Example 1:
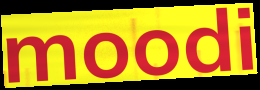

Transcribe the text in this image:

moodi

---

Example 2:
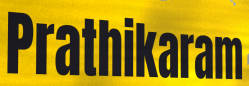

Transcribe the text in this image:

Prathikaram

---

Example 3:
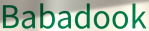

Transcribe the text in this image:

Babadook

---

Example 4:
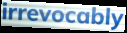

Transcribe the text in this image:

irrevocably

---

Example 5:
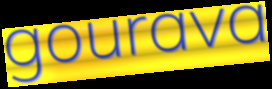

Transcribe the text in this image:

gourava